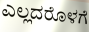
ಎಲ್ಲದರೊಳಗೆ